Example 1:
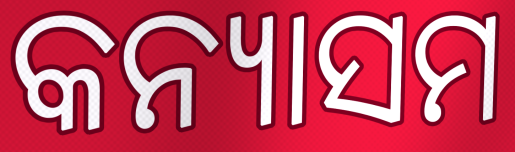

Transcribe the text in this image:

କନ୍ୟାସମ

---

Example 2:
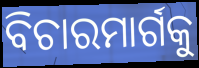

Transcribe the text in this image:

ବିଚାରମାର୍ଗକୁ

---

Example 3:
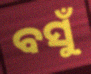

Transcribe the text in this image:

ବସୁଁ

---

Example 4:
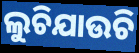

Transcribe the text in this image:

ଲୁଚିଯାଉଚି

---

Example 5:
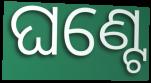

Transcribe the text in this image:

ଘଣ୍ଟେ